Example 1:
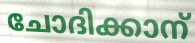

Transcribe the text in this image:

ചോദിക്കാന്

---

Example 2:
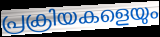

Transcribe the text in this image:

പ്രക്രിയകളെയും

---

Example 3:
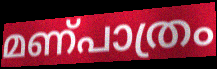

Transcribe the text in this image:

മണ്പാത്രം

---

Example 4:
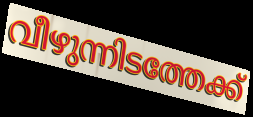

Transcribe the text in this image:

വീഴുന്നിടത്തേക്ക്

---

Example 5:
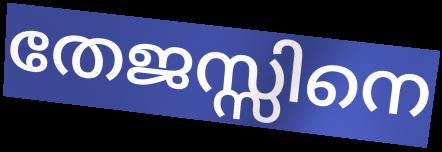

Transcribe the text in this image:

തേജസ്സിനെ